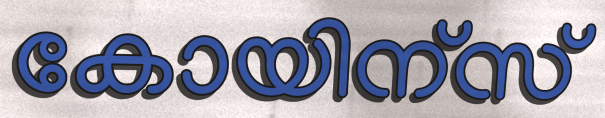
കോയിന്സ്